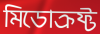
মিডোক্রফ্ট